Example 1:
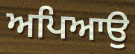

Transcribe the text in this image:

ਅਪਿਆਉ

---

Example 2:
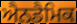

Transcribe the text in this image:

ਐਨਡੈਮਿਕ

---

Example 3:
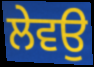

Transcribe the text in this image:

ਲੇਵਉ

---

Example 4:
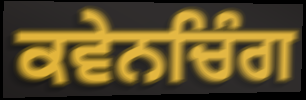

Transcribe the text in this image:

ਕਵੇਨਚਿੰਗ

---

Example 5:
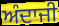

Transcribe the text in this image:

ਅੰਦਾਜੀ